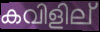
കവിളില്